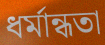
ধৰ্মান্ধতা